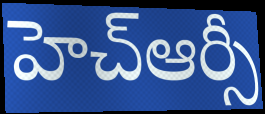
హెచ్ఆర్సీ